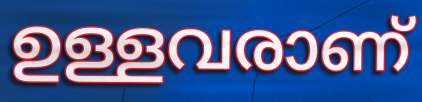
ഉള്ളവരാണ്